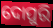
ଦୋପୁରି